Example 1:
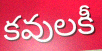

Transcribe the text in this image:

కవులకీ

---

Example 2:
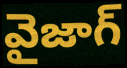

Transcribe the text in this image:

వైజాగ్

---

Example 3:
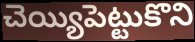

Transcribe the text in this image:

చెయ్యిపెట్టుకొని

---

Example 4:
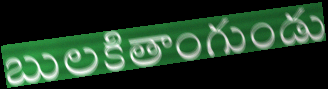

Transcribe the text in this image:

బులకితాంగుండు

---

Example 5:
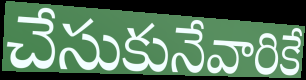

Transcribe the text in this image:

చేసుకునేవారికే